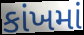
કાંખમાં